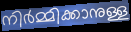
നിർമ്മിക്കാനുള്ള